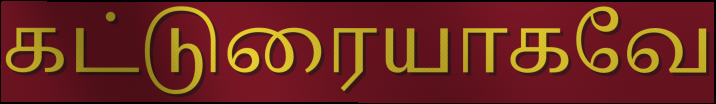
கட்டுரையாகவே